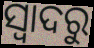
ସ୍ୱାଦରୁ